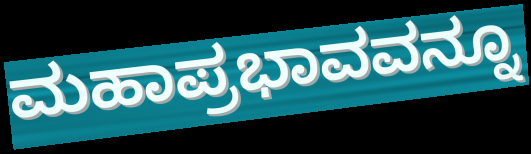
ಮಹಾಪ್ರಭಾವವನ್ನೂ